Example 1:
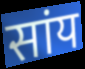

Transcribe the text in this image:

सांय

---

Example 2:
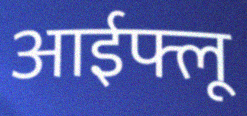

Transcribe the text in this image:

आईफ्लू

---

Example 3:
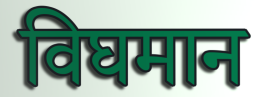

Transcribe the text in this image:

विघमान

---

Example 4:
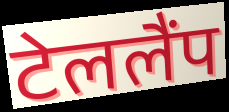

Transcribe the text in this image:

टेललैंप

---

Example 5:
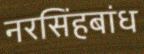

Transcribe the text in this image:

नरसिंहबांध